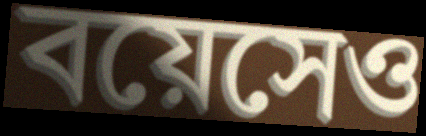
বয়েসেও